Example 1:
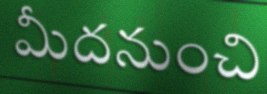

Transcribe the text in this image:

మీదనుంచి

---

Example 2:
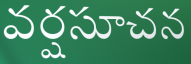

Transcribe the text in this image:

వర్షసూచన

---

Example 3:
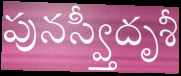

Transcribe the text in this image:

పునస్వ్తీదృశీ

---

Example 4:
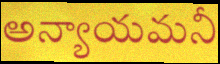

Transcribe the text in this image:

అన్యాయమనీ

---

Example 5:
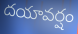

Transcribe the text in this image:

దయావర్షం